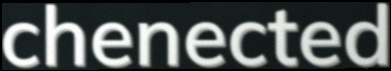
chenected